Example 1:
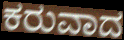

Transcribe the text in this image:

ಕರುವಾದ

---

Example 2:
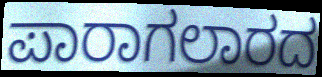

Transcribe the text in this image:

ಪಾರಾಗಲಾರದ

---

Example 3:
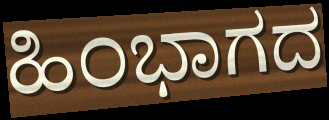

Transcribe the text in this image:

ಹಿಂಭಾಗದ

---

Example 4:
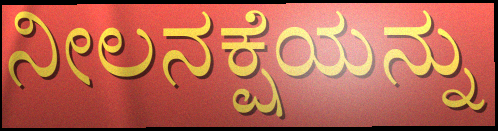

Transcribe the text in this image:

ನೀಲನಕ್ಷೆಯನ್ನು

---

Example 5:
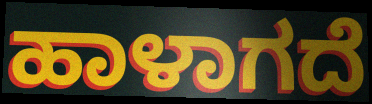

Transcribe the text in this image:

ಹಾಳಾಗದೆ